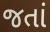
જતાં